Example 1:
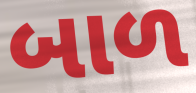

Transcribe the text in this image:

બાળ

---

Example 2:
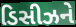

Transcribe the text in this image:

ડિસીઝને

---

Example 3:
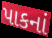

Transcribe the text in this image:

પાકનાં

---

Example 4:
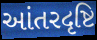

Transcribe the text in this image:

આંતરદૃષ્ટિ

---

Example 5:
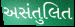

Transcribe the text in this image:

અસંતુલિત